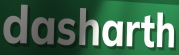
dasharth